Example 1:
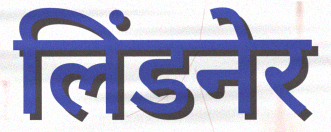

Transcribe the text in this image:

लिंडनेर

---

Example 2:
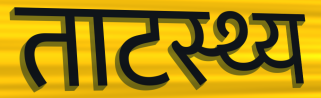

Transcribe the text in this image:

ताटस्थ्य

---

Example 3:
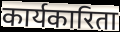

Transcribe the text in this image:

कार्यकारिता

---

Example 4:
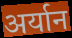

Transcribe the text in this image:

अर्यान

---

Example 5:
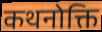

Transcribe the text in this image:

कथनोक्ति